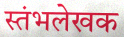
स्तंभलेखक